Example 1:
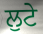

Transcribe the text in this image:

ਲੁਟੇ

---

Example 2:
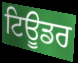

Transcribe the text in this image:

ਟਿਊਡਰ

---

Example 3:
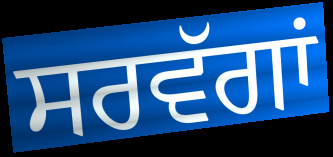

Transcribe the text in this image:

ਸਰਵੱਗਾਂ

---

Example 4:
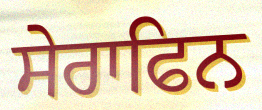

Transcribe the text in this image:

ਸੇਰਾਫਿਨ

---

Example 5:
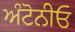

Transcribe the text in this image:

ਅੰਟੋਨੀਓ